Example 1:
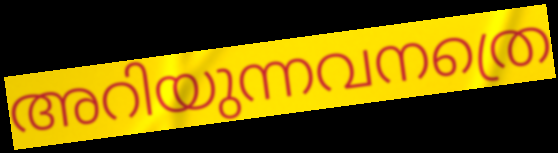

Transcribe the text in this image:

അറിയുന്നവനത്രെ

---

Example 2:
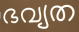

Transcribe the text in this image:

ഭവ്യത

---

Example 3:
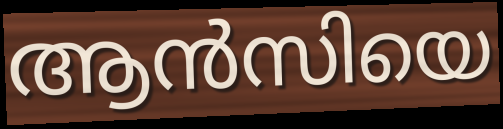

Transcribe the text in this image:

ആൻസിയെ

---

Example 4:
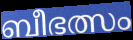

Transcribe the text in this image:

ബീഭത്സം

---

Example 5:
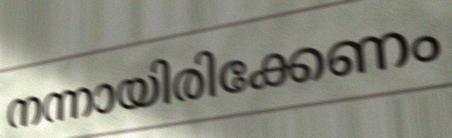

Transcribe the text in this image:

നന്നായിരിക്കേണം